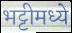
भट्टीमध्ये